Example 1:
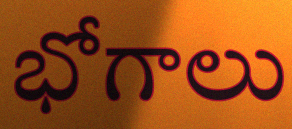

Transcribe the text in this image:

భోగాలు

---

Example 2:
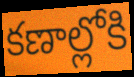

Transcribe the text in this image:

కణాల్లోకి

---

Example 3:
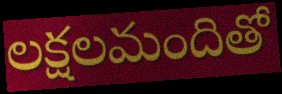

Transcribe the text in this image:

లక్షలమందితో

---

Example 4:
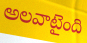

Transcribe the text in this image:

అలవాటైంది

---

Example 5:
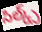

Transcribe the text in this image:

సిల్క్స్